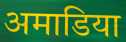
अमाडिया